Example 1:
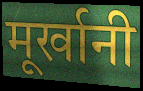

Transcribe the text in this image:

मूर्खानी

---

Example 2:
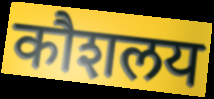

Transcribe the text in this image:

कौशलय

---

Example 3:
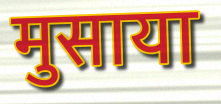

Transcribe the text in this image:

मुसाया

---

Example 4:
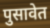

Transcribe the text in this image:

पुसावेत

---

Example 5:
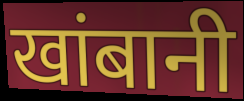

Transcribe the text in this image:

खांबानी